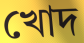
খোদ